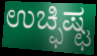
ಉಚ್ಫಿಷ್ಟ